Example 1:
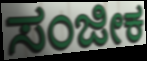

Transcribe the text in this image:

ಸಂಜೀಕ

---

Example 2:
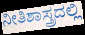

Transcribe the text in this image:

ನೀತಿಶಾಸ್ತ್ರದಲ್ಲಿ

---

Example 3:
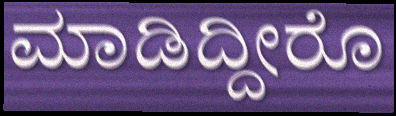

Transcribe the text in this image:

ಮಾಡಿದ್ದೀರೊ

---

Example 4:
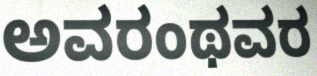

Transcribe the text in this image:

ಅವರಂಥವರ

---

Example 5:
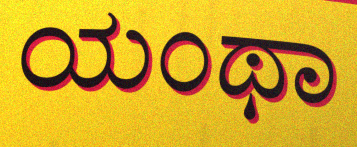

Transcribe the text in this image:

ಯಂಥಾ